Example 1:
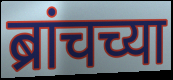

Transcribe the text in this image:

ब्रांचच्या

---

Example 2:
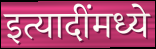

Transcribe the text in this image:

इत्यादींमध्ये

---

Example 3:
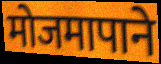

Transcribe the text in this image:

मोजमापाने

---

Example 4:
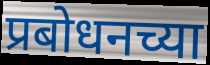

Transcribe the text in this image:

प्रबोधनच्या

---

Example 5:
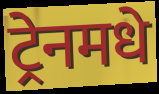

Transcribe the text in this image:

ट्रेनमधे